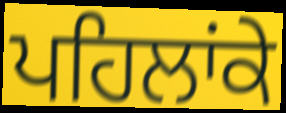
ਪਹਿਲਾਂਕੇ